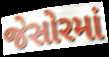
જેસોરમાં